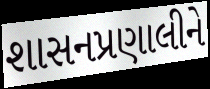
શાસનપ્રણાલીને